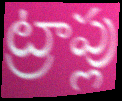
ట్రాప్లు